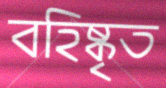
বহিষ্কৃত